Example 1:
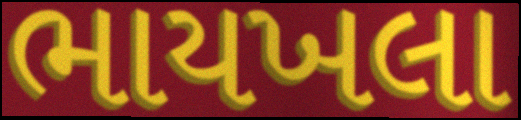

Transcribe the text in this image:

ભાયખલા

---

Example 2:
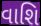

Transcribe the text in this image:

વાશિ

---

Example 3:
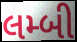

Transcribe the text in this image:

લમ્બી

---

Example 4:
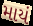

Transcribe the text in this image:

માયં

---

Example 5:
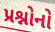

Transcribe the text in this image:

પ્રશ્નોનો